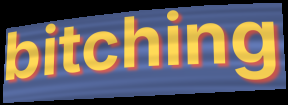
bitching